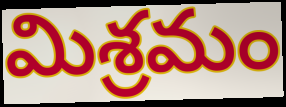
మిశ్రమం